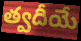
త్వదీయే